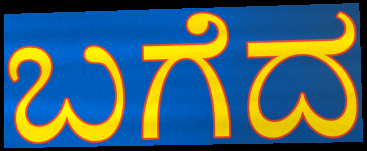
ಬಗೆದ